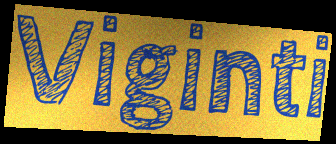
Viginti